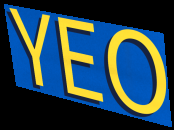
YEO